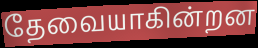
தேவையாகின்றன